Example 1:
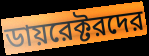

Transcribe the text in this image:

ডায়রেক্টরদের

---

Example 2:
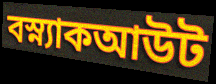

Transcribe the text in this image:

বস্ন্যাকআউট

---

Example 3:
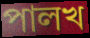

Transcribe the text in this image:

পালখ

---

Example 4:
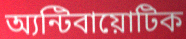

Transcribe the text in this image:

অ্যন্টিবায়োটিক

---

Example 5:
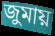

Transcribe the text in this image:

জুমায়